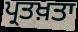
ਪ੍ਰਤਖ਼ਤਾ